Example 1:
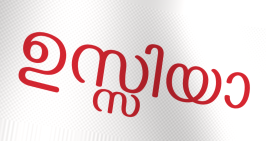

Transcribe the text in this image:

ഉസ്സിയാ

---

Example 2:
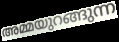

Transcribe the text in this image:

അമ്മയുറങ്ങുന്ന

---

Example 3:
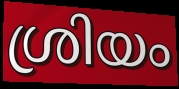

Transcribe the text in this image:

ശ്രിയം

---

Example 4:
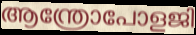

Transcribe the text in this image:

ആന്ത്രോപോളജി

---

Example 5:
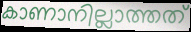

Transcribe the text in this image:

കാണാനില്ലാത്തത്